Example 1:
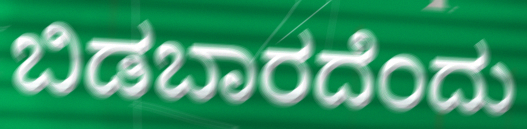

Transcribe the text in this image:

ಬಿಡಬಾರದೆಂದು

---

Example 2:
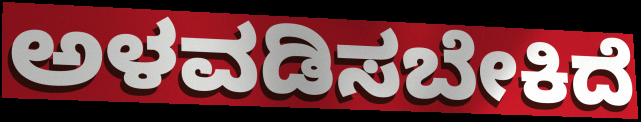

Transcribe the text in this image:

ಅಳವಡಿಸಬೇಕಿದೆ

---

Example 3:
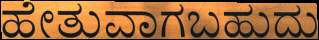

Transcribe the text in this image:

ಹೇತುವಾಗಬಹುದು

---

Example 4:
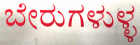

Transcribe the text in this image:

ಬೇರುಗಳುಳ್ಳ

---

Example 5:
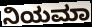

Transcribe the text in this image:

ನಿಯಮಾ